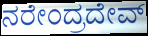
ನರೇಂದ್ರದೇವ್